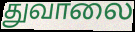
துவாலை